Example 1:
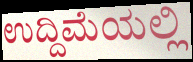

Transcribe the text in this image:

ಉದ್ದಿಮೆಯಲ್ಲಿ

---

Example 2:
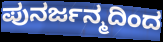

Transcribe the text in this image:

ಪುನರ್ಜನ್ಮದಿಂದ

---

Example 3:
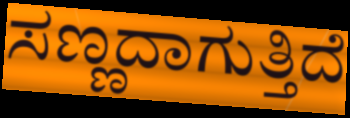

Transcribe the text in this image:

ಸಣ್ಣದಾಗುತ್ತಿದೆ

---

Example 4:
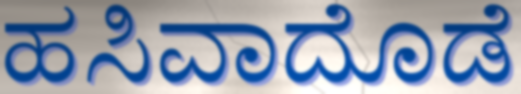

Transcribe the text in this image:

ಹಸಿವಾದೊಡೆ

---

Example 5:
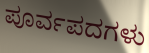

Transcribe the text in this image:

ಪೂರ್ವಪದಗಳು